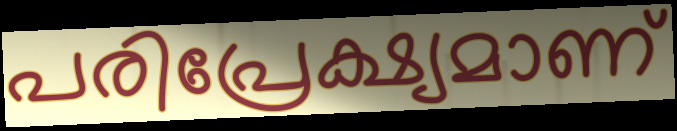
പരിപ്രേക്ഷ്യമാണ്